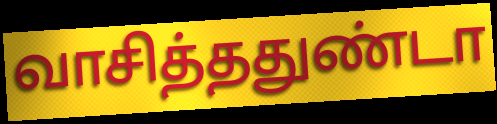
வாசித்ததுண்டா